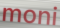
moni